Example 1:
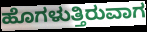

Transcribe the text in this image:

ಹೊಗಳುತ್ತಿರುವಾಗ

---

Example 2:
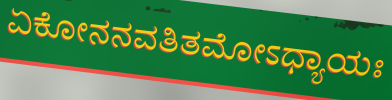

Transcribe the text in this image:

ಏಕೋನನವತಿತಮೋಽಧ್ಯಾಯಃ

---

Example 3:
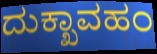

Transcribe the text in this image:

ದುಕ್ಖಾವಹಂ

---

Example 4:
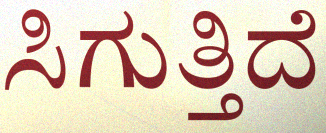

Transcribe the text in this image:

ಸಿಗುತ್ತಿದೆ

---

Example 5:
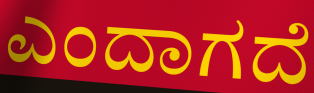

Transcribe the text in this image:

ಎಂದಾಗದೆ